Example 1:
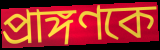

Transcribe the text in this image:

প্রাঙ্গণকে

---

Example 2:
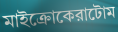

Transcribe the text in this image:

মাইক্রোকেরাটোম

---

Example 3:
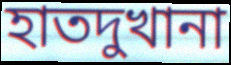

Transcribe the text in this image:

হাতদুখানা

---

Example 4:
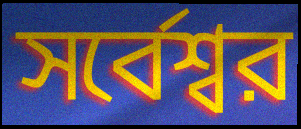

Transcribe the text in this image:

সর্বেশ্বর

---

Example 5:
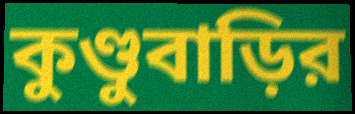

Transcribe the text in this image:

কুণ্ডুবাড়ির